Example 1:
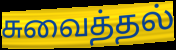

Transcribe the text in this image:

சுவைத்தல்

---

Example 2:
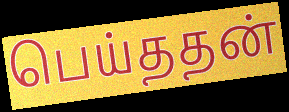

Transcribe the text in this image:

பெய்ததன்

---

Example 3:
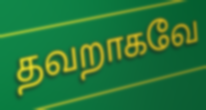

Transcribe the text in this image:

தவறாகவே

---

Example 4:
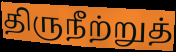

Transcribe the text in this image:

திருநீற்றுத்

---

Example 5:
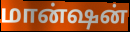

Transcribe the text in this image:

மான்ஷன்